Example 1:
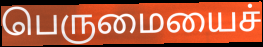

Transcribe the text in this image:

பெருமையைச்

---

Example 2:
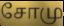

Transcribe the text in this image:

சோமு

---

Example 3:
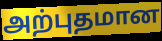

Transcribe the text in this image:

அற்புதமான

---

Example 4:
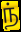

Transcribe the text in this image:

ந்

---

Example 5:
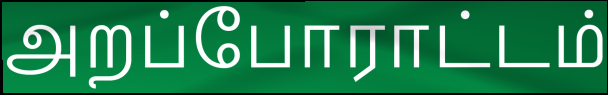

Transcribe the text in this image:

அறப்போராட்டம்